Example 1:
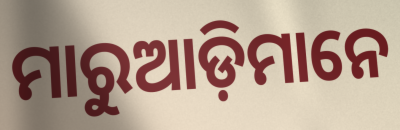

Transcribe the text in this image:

ମାରୁଆଡ଼ିମାନେ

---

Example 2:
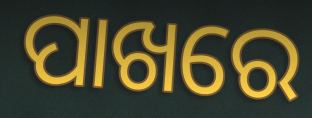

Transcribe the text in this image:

ପାଖରେ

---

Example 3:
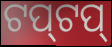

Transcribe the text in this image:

ଟପ୍‌ଟପ୍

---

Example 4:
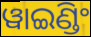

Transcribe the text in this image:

ୱାଇଣ୍ଡିଂ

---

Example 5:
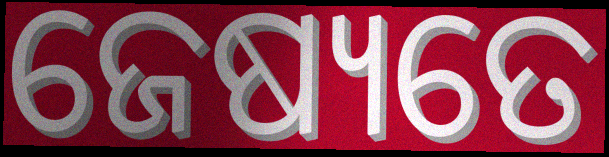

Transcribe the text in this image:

ଜେଷ୍ୟତେ